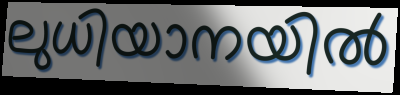
ലുധിയാനയിൽ